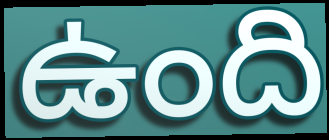
ఉంది